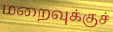
மறைவுக்குச்